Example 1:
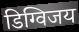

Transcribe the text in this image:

डिग्विजय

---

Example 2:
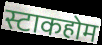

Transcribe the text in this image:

स्टाकहोम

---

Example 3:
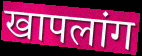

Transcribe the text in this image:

खापलांग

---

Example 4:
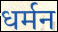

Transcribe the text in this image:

धर्मन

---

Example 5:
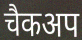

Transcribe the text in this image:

चैकअप